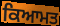
ਕਿਆਮਤ